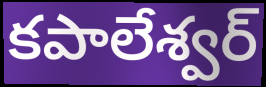
కపాలేశ్వర్